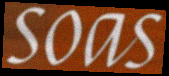
soas